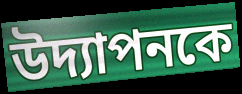
উদ্যাপনকে